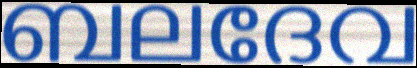
ബലദേവ